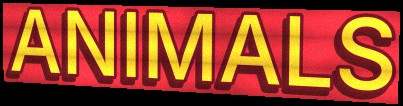
ANIMALS